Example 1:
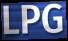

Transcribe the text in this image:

LPG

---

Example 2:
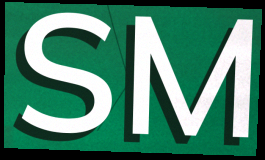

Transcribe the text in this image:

SM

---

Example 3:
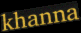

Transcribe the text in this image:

khanna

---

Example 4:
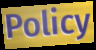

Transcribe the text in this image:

Policy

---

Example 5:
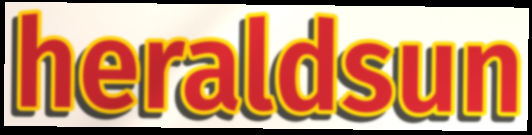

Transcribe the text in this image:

heraldsun